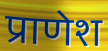
प्राणेश